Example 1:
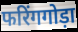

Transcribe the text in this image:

फरिंगगोड़ा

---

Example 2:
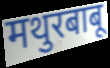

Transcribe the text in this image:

मथुरबाबू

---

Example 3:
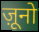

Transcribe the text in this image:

ज़ूनो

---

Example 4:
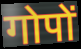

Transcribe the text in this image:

गोपों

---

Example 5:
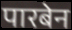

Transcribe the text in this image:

पारबेन